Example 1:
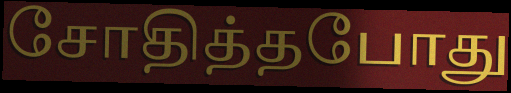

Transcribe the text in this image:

சோதித்தபோது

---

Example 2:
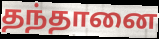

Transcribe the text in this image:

தந்தானை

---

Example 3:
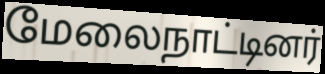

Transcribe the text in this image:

மேலைநாட்டினர்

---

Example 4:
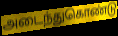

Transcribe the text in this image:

அடைந்துகொண்டு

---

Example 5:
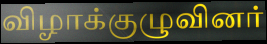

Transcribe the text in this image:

விழாக்குழுவினர்